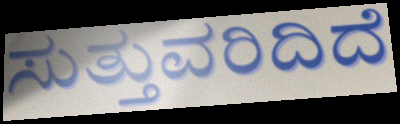
ಸುತ್ತುವರಿದಿದೆ